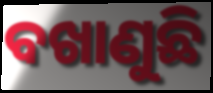
ବଖାଣୁଛି